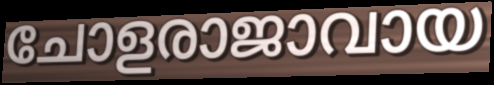
ചോളരാജാവായ